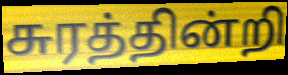
சுரத்தின்றி